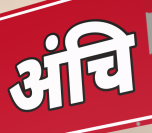
अंचि